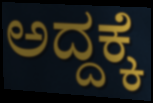
ಅದ್ದಕ್ಕೆ